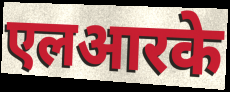
एलआरके